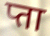
प्ता